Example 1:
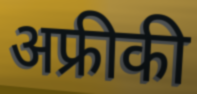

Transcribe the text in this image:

अफ्रीकी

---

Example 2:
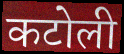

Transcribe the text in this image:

कटोली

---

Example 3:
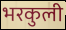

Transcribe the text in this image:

भरकुली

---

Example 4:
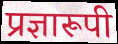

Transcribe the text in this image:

प्रज्ञारूपी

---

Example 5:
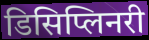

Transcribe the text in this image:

डिसिप्लिनरी